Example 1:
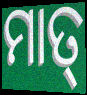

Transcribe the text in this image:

ମାତ୍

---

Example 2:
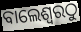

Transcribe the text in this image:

ବାଲେଶ୍ୱରଠୁ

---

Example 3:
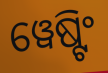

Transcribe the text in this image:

ୱେଷ୍ଟିଂ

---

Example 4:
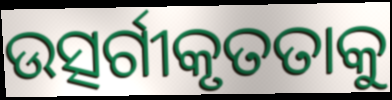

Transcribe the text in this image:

ଉତ୍ସର୍ଗୀକୃତତାକୁ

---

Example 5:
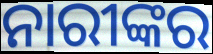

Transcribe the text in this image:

ନାରୀଙ୍କର